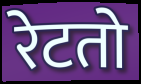
रेटतो